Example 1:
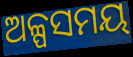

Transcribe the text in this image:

ଅଳ୍ପସମୟ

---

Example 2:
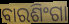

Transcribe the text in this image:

ବାରଶିଂଗା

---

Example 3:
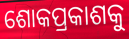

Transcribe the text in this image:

ଶୋକପ୍ରକାଶକୁ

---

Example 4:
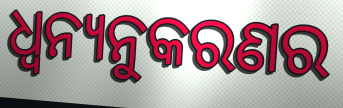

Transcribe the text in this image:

ଧ୍ବନ୍ୟନୁକରଣର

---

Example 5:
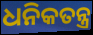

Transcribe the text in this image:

ଧନିକତନ୍ତ୍ର